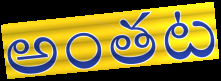
అంతట